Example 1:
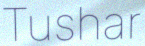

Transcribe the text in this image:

Tushar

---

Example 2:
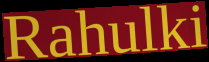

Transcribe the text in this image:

Rahulki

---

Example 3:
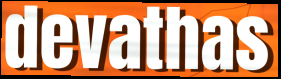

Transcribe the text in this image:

devathas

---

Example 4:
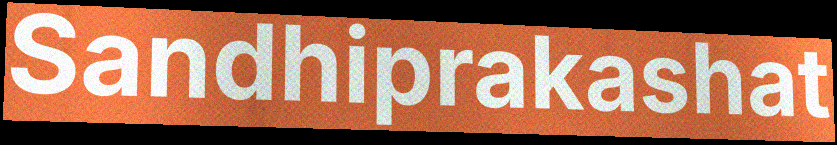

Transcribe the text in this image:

Sandhiprakashat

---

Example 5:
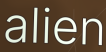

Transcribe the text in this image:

alien